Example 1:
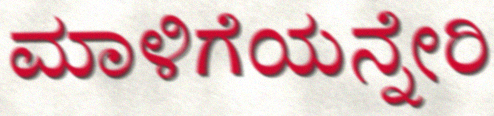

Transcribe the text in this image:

ಮಾಳಿಗೆಯನ್ನೇರಿ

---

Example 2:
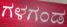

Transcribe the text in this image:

ಗಳಗಂಡ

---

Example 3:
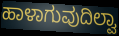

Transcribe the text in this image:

ಹಾಳಾಗುವುದಿಲ್ವಾ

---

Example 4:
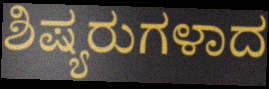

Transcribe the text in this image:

ಶಿಷ್ಯರುಗಳಾದ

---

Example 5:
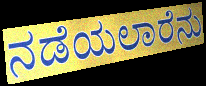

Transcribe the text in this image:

ನಡೆಯಲಾರೆನು